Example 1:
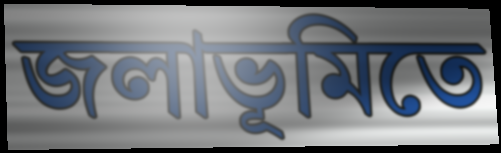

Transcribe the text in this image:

জলাভূমিতে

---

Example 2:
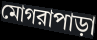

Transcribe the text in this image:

মোগরাপাড়া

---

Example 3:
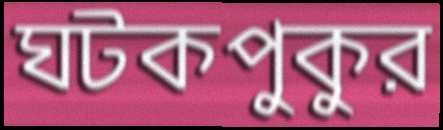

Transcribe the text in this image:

ঘটকপুকুর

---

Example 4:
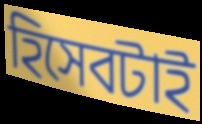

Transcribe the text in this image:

হিসেবটাই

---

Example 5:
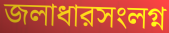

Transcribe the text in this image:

জলাধারসংলগ্ন